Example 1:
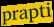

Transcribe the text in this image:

prapti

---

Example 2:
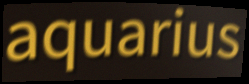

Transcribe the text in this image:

aquarius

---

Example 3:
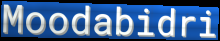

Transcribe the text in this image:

Moodabidri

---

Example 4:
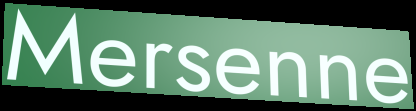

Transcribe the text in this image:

Mersenne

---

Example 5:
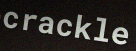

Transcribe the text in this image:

crackle